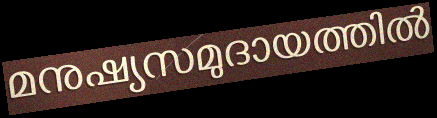
മനുഷ്യസമുദായത്തിൽ